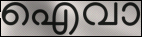
ഐവാ